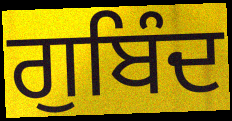
ਗੁਬਿੰਦ